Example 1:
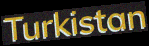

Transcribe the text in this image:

Turkistan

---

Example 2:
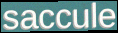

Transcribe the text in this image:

saccule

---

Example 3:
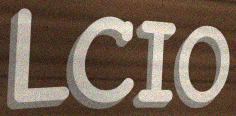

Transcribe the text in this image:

LCIO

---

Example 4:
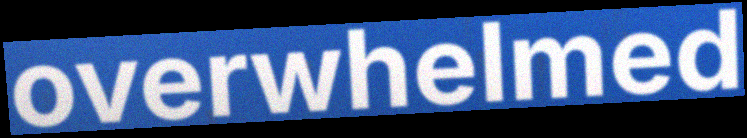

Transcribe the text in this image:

overwhelmed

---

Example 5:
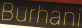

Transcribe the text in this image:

Burhani